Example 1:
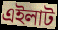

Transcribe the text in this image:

এইলাট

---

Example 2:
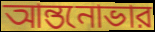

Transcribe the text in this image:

আন্তনোভার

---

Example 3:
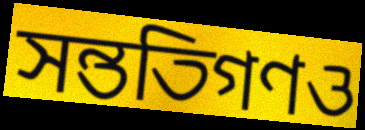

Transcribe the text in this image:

সন্ততিগণও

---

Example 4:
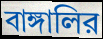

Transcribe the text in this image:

বাঙ্গালির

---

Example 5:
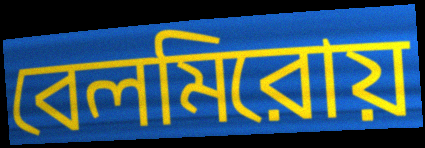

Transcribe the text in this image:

বেলমিরোয়